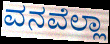
ವನವೆಲ್ಲಾ